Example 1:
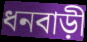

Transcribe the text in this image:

ধনবাড়ী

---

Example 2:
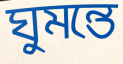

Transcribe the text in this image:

ঘুমন্তে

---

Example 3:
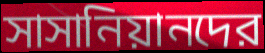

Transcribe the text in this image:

সাসানিয়ানদের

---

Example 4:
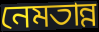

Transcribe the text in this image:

নেমতান্ন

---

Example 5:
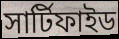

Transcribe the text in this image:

সার্টিফাইড